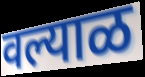
वल्याळ